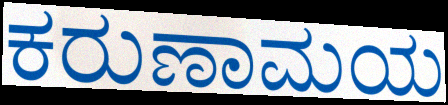
ಕರುಣಾಮಯ